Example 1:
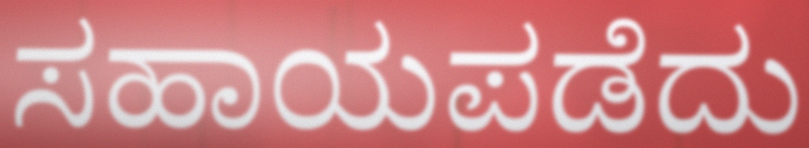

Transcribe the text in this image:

ಸಹಾಯಪಡೆದು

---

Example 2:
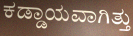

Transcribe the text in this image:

ಕಡ್ಡಾಯವಾಗಿತ್ತು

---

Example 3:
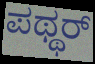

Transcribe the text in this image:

ಪಥ್ಥರ್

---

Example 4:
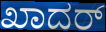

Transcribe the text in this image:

ಖಾದರ್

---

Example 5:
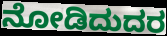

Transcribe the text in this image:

ನೋಡಿದುದರ